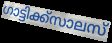
ഗാട്ടിക്ക്സാലസ്